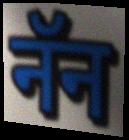
नॅन